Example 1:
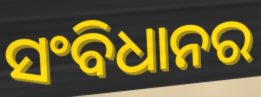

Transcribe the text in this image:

ସଂବିଧାନର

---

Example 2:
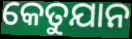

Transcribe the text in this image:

କେତୁଯାନ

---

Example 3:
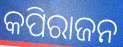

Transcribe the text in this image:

କପିରାଜନ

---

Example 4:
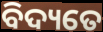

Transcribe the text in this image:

ବିଦ୍ୟତେ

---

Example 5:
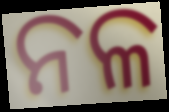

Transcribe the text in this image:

ନଳ